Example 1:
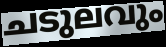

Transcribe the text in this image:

ചടുലവും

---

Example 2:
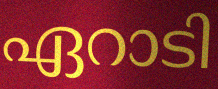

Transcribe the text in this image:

ഏറാടി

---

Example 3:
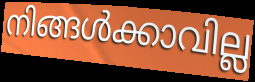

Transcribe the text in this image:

നിങ്ങൾക്കാവില്ല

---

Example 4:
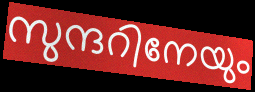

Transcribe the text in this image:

സുന്ദറിനേയും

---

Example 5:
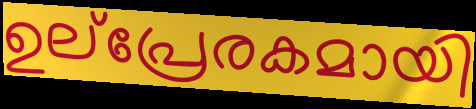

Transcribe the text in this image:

ഉല്പ്രേരകമായി